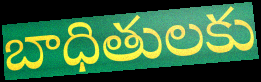
బాధితులకు